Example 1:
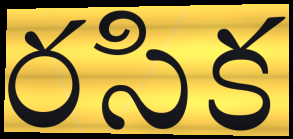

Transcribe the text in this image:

రసిక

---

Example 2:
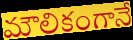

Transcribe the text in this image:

మౌలికంగానే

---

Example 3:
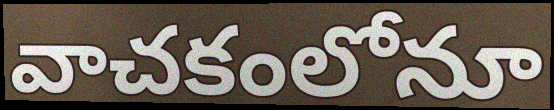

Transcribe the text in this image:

వాచకంలోనూ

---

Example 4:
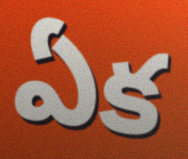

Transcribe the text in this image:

ఏక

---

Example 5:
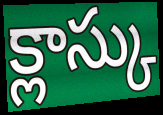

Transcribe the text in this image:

క్లాస్కు